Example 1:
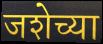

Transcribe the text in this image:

जशेच्या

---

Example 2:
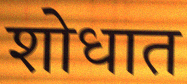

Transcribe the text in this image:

शोधात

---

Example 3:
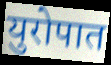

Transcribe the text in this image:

युरोपात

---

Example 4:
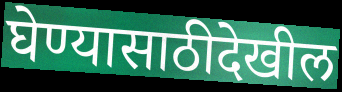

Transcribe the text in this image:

घेण्यासाठीदेखील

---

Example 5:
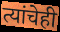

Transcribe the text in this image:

त्यांचेही